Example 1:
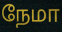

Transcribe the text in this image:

நேமா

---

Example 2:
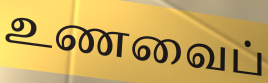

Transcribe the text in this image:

உணவைப்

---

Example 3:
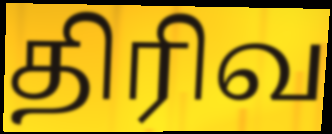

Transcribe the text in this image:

திரிவ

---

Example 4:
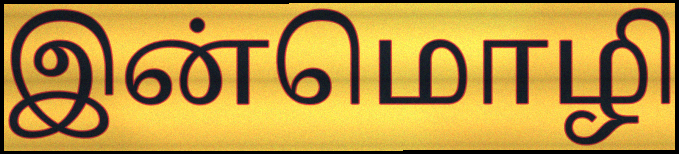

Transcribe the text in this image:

இன்மொழி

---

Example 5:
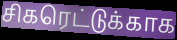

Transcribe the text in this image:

சிகரெட்டுக்காக